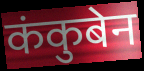
कंकुबेन